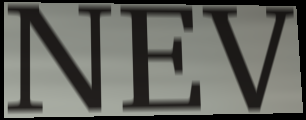
NEV